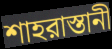
শাহরাস্তানী